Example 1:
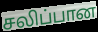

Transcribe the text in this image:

சலிப்பான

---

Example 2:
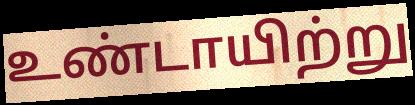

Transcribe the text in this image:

உண்டாயிற்று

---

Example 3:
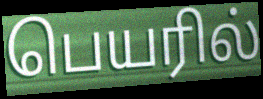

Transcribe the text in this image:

பெயரில்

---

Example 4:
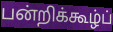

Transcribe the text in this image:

பன்றிக்கூழ்ப்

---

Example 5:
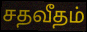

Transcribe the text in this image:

சதவீதம்